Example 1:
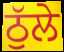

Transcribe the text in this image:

ਠੁੱਲੇ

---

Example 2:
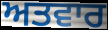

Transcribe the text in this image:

ਅਤਵਾਰ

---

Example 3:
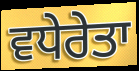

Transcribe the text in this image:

ਵਧੇਰੇਤਾ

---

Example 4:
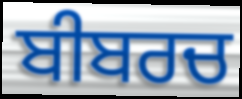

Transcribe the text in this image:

ਬੀਬਰਚ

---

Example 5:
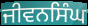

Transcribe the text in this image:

ਜੀਵਨਸਿੰਘ